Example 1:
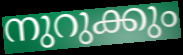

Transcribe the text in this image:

നുറുക്കും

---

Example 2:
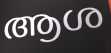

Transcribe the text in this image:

ആശ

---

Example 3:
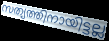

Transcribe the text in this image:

സത്യത്തിനായിട്ടല്ല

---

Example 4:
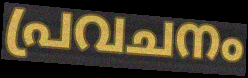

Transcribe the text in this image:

പ്രവചനം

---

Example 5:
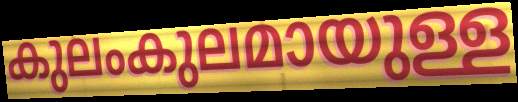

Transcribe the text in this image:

കുലംകുലമായുള്ള